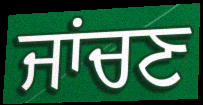
ਜਾਂਚਣ